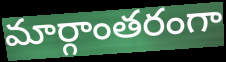
మార్గాంతరంగా